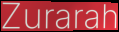
Zurarah